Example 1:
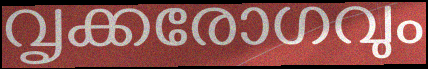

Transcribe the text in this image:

വൃക്കരോഗവും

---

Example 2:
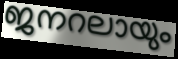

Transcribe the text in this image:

ജനറലായും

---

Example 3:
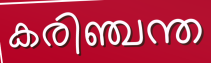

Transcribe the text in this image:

കരിഞ്ചന്ത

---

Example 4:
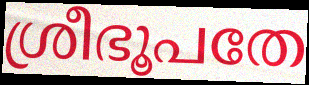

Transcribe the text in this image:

ശ്രീഭൂപതേ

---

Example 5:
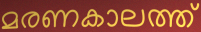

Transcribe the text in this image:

മരണകാലത്ത്